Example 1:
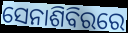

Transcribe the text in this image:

ସେନାଶିବିରରେ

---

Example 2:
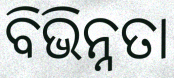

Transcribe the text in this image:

ବିଭିନ୍ନତା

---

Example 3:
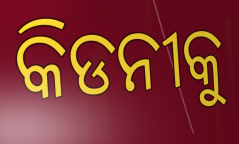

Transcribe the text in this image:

କିଡନୀକୁ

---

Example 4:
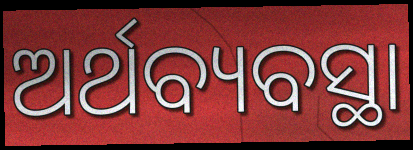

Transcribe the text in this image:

ଅର୍ଥବ୍ୟବସ୍ଥା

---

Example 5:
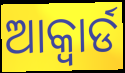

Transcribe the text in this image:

ଆକ୍ୱାର୍ଡ